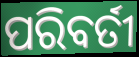
ପରିବର୍ତୀ